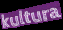
kultura